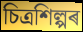
চিত্ৰশিল্পৰ